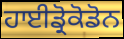
ਹਾਈਡ੍ਰੋਕੋਡੋਨ